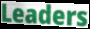
Leaders